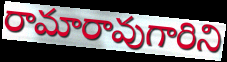
రామారావుగారిని